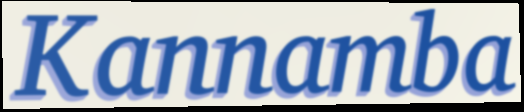
Kannamba